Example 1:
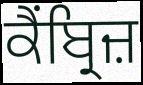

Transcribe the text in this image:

ਕੈਂਬ੍ਰਿਜ਼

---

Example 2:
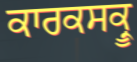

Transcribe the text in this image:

ਕਾਰਕਸਕ੍ਰੂ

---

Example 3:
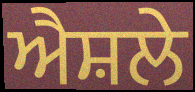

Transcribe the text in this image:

ਐਸ਼ਲੇ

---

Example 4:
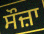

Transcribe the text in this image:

ਸੌਜ਼ਾ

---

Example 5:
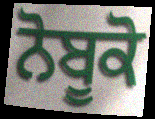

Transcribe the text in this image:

ਨੋਬੂਕੋ